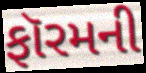
ફૉરમની